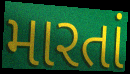
મારતાં